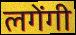
लगेंगी